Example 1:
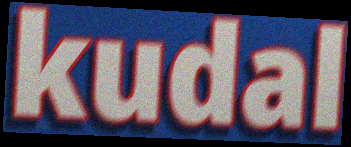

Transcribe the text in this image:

kudal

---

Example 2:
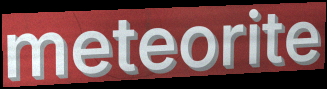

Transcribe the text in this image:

meteorite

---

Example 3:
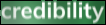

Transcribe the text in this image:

credibility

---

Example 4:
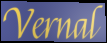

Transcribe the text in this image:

Vernal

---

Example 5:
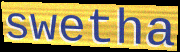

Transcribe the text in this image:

swetha